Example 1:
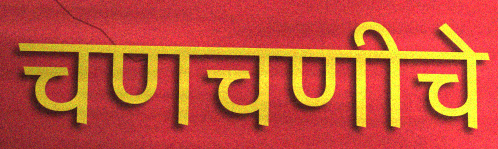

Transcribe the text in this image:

चणचणीचे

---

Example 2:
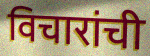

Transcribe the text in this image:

विचारांची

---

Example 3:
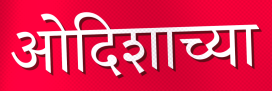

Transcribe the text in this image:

ओदिशाच्या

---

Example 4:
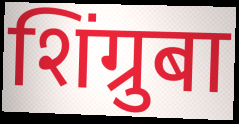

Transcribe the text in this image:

शिंग्रुबा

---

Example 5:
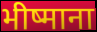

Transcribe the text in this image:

भीष्माना